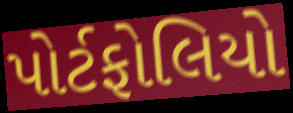
પોર્ટફોલિયો